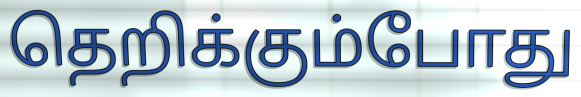
தெறிக்கும்போது